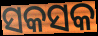
ସକସକ